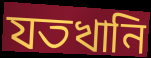
যতখানি